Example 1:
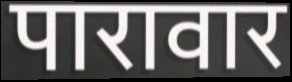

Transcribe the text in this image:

पारावार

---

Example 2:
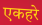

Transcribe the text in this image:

एकहरे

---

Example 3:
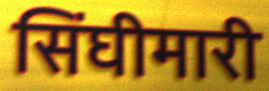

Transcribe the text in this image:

सिंघीमारी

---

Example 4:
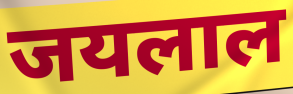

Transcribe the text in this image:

जयलाल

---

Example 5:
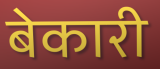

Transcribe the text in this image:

बेकारी